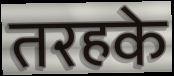
तरहके